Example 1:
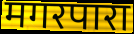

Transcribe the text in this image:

मगरपारा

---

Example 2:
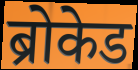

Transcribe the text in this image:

ब्रोकेड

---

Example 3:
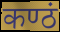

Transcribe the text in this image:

कण्ठं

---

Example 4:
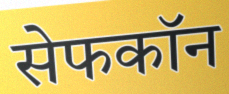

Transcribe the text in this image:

सेफकॉन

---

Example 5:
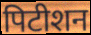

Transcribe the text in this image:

पिटीशन